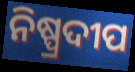
ନିଷ୍ପ୍ରଦୀପ